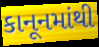
કાનૂનમાંથી